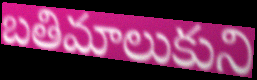
బతిమాలుకుని